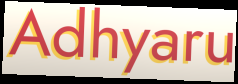
Adhyaru